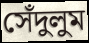
সেঁদুলুম